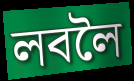
লবলৈ